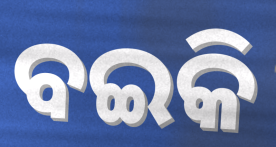
ବଇକି